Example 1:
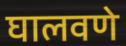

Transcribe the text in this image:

घालवणे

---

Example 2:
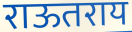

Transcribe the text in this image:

राऊतराय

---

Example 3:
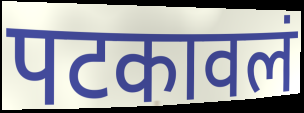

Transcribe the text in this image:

पटकावलं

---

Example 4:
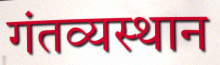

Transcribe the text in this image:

गंतव्यस्थान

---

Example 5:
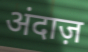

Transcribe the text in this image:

अंदाज़